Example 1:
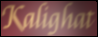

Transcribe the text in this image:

Kalighat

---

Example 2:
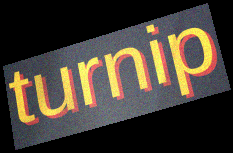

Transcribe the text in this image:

turnip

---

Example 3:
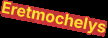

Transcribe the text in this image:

Eretmochelys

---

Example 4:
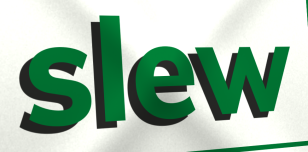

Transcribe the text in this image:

slew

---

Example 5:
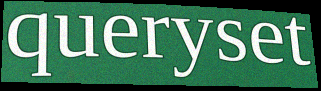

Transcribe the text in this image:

queryset